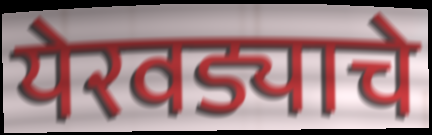
येरवड्याचे